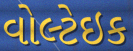
વોલ્ટેઇક